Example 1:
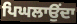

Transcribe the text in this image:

ਪਿਘਲਾਉਂਦਾ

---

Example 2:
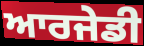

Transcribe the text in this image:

ਆਰਜੇਡੀ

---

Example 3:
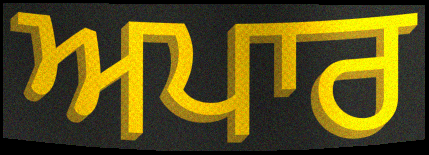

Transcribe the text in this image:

ਅਪਾਰ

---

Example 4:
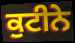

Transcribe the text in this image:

ਕੁਟੀਨੇ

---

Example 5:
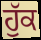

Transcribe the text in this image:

ਹੁੱਕ